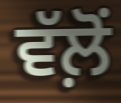
ਵੱਲ਼ੋਂ